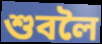
শুবলৈ